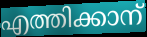
എത്തിക്കാന്